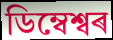
ডিম্বেশ্বৰ